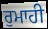
ਰੁਮਾਹੀ